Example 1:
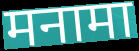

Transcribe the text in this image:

मनामा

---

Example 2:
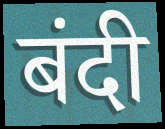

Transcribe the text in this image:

बंदी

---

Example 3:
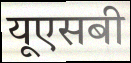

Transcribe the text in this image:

यूएसबी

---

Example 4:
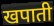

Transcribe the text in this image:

खपाती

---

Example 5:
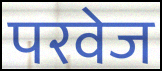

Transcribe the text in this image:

परवेज